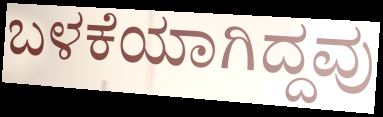
ಬಳಕೆಯಾಗಿದ್ದವು